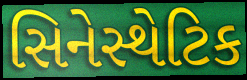
સિનેસ્થેટિક